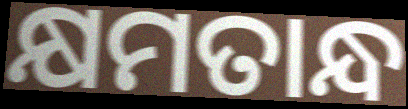
କ୍ଷମତାନ୍ଧ